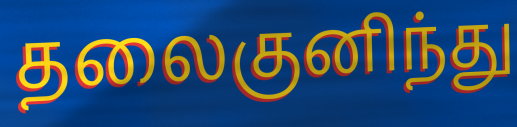
தலைகுனிந்து